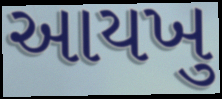
આયખુ